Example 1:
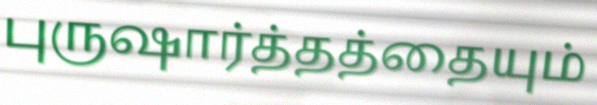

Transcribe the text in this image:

புருஷார்த்தத்தையும்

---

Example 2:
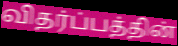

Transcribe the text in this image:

விதர்ப்பத்தின்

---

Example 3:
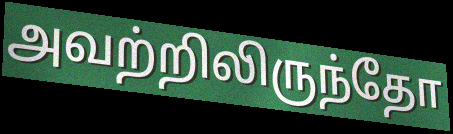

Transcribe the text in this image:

அவற்றிலிருந்தோ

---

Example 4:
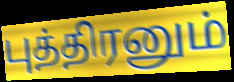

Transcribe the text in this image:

புத்திரனும்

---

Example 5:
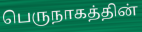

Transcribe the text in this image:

பெருநாகத்தின்